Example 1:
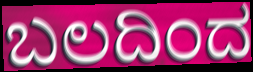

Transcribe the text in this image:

ಬಲದಿಂದ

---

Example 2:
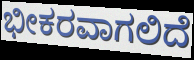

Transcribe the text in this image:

ಭೀಕರವಾಗಲಿದೆ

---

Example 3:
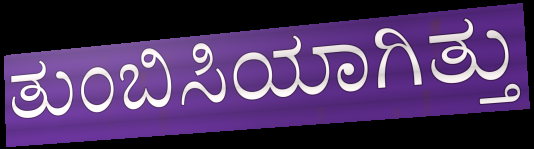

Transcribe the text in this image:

ತುಂಬಿಸಿಯಾಗಿತ್ತು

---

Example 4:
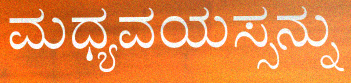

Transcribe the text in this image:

ಮಧ್ಯವಯಸ್ಸನ್ನು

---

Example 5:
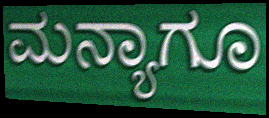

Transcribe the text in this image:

ಮನ್ಯಾಗೂ